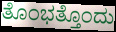
ತೊಂಭತ್ತೊಂದು